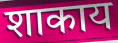
शाकाय